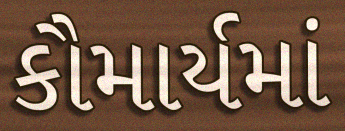
કૌમાર્યમાં